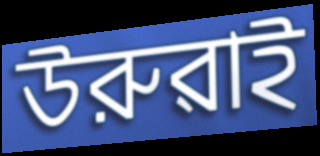
উৰুৱাই